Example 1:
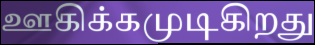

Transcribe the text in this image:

ஊகிக்கமுடிகிறது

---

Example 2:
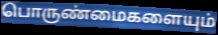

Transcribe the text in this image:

பொருண்மைகளையும்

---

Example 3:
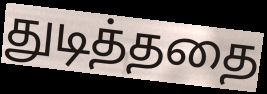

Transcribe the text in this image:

துடித்ததை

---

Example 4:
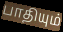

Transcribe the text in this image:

பாதியும்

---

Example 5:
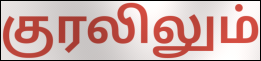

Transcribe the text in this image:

குரலிலும்